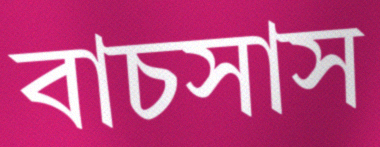
বাচসাস